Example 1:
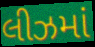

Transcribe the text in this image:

લીઝમાં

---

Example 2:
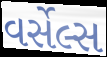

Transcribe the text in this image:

વર્સેલ્સ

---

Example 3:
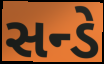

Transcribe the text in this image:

સન્ડે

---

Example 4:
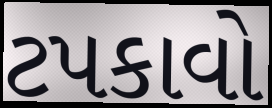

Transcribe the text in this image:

ટપકાવો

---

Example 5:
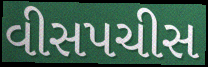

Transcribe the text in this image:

વીસપચીસ